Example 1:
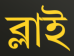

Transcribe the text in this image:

ব্লাই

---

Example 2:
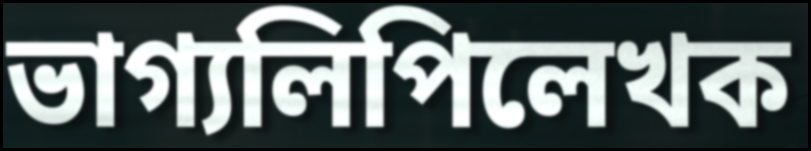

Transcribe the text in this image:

ভাগ্যলিপিলেখক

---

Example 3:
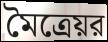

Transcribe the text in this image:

মৈত্রেয়র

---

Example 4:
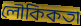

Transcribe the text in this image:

লৌকিকতা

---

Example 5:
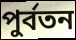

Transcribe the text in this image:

পুর্বতন